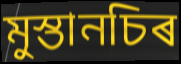
মুস্তানচিৰ